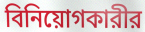
বিনিয়োগকারীর